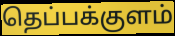
தெப்பக்குளம்